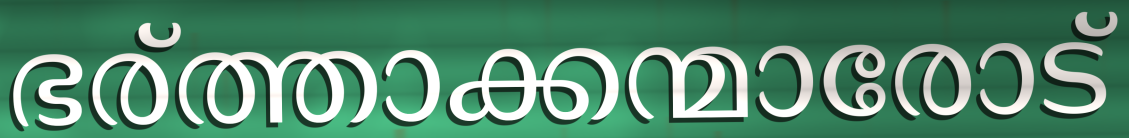
ഭര്ത്താക്കന്മാരോട്